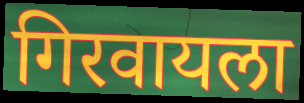
गिरवायला